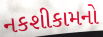
નકશીકામનો